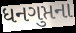
ધનગુપ્તના